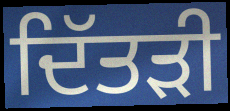
ਦਿੱਤੜੀ